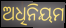
ଅଧିନିୟମ